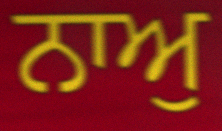
ਨਾਅੁ